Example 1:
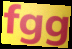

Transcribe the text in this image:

fgg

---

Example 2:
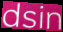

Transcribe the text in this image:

dsin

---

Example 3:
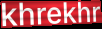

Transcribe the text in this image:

khrekhr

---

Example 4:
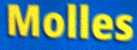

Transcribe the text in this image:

Molles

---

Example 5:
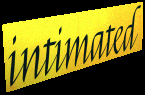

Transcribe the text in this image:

intimated